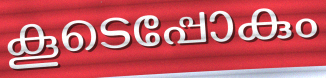
കൂടെപ്പോകും